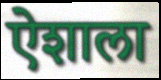
ऐशाला